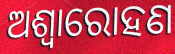
ଅଶ୍ୱାରୋହଣ